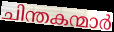
ചിന്തകന്മാർ